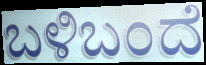
ಬಳಿಬಂದೆ